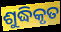
ଶୁଦ୍ଧିକୃତ